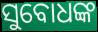
ସୁବୋଧଙ୍କ